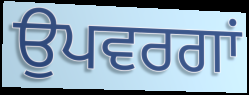
ਉਪਵਰਗਾਂ